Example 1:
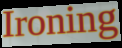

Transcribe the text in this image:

Ironing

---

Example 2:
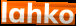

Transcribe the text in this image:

lahko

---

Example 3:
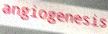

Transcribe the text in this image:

angiogenesis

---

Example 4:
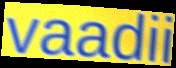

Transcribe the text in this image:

vaadii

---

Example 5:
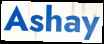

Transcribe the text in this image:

Ashay